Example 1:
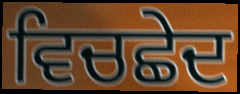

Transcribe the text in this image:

ਵਿਚਛੇਦ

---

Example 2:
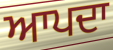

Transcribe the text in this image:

ਆਪਦਾ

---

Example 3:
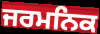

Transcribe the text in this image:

ਜਰਮਨਿਕ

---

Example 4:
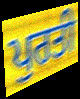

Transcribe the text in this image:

ਪੁਰਤੀ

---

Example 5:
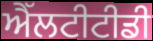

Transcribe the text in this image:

ਐੱਲਟੀਟੀਡੀ